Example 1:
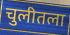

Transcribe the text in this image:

चुलीतला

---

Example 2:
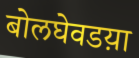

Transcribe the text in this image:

बोलघेवडय़ा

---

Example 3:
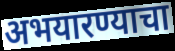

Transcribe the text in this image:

अभयारण्याचा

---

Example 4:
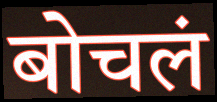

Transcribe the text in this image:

बोचलं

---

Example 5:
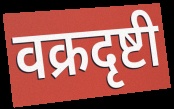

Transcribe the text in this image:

वक्रदृष्टी